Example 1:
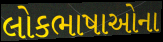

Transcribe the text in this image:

લોકભાષાઓના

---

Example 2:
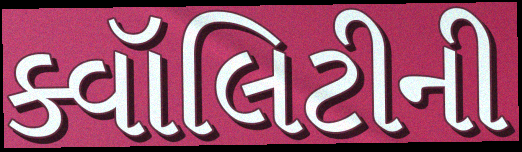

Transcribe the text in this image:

ક્વૉલિટીની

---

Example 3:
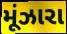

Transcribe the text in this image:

મૂંઝારા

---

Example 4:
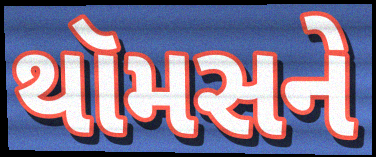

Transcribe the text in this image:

થૉમસને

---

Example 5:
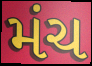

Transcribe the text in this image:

મંચ